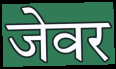
जेवर